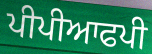
ਪੀਪੀਆਫਪੀ